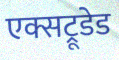
एक्सट्रूडेड